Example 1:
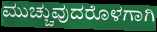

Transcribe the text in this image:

ಮುಚ್ಚುವುದರೊಳಗಾಗಿ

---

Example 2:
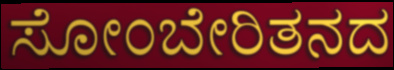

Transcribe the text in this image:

ಸೋಂಬೇರಿತನದ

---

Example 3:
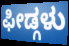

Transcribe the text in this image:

ಫೀಡ್ಗಳು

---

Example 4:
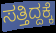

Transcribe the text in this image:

ಸತ್ತಿದ್ದಕ್ಕೆ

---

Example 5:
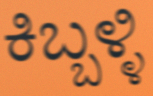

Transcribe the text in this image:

ಕಿಬ್ಬಳ್ಳಿ